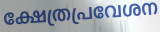
ക്ഷേത്രപ്രവേശന